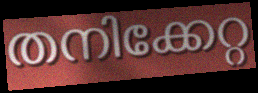
തനിക്കേറ്റ